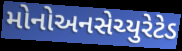
મોનોઅનસેચ્યુરેટેડ